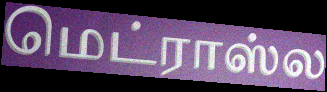
மெட்ராஸ்ல